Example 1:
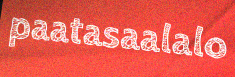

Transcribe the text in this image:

paatasaalalo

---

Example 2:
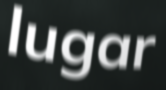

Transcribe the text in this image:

lugar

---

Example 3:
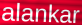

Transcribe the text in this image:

alankar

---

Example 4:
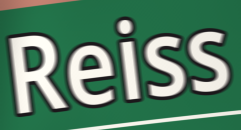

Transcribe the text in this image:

Reiss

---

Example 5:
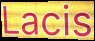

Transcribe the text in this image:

Lacis